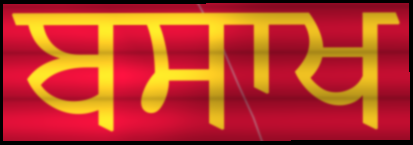
ਬਸਾਖ